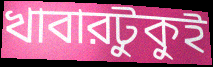
খাবারটুকুই